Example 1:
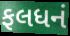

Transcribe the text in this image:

ફલધનં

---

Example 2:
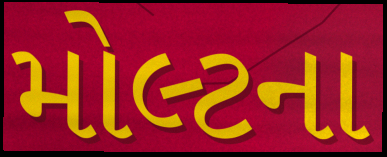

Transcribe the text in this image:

મોલ્ટના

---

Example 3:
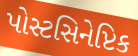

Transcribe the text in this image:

પોસ્ટસિનેપ્ટિક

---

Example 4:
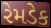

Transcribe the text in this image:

રેમડેક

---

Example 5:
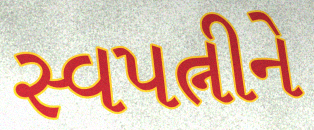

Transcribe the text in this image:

સ્વપત્નીને